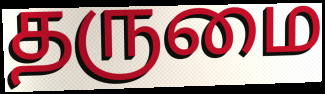
தருமை